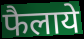
फैलाये